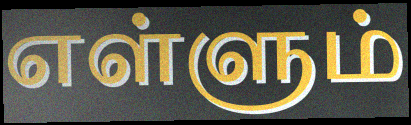
எள்ளும்